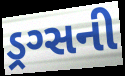
ડ્રગ્સની